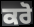
ਕਰੋ